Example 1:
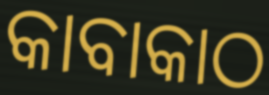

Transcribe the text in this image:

କାବାକାଠ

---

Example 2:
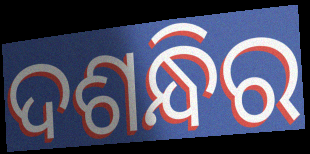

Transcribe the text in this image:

ଦଶନ୍ଧିର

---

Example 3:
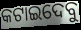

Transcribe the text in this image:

କଟାଇଦେବୁ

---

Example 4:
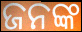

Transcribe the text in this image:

ଜନଙ୍କ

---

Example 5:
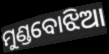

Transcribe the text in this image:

ମୁଣ୍ଡବୋଝିଆ